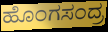
ಹೊಂಗಸಂದ್ರ